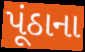
પૂંઠાના